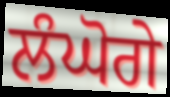
ਲੰਘੋਗੇ